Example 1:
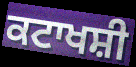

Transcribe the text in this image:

ਕਟਾਖਸ਼ੀ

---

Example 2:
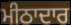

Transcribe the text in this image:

ਮੀਠਾਦਾਰ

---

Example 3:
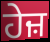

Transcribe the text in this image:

ਹੇਜ਼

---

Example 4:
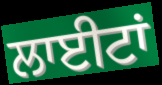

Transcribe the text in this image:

ਲਾਈਟਾਂ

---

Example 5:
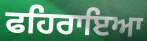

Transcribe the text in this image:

ਫਹਿਰਾਇਆ